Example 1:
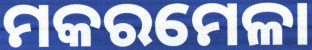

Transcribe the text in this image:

ମକରମେଳା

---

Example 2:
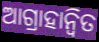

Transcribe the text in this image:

ଆଗ୍ରାହାନ୍ୱିତ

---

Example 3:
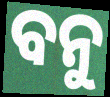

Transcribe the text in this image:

ବନୁ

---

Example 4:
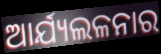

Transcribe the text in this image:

ଆର୍ଯ୍ୟଲଳନାର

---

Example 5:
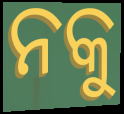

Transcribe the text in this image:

ନକୁ